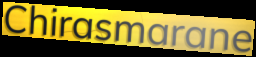
Chirasmarane